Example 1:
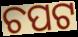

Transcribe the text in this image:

ଚପଟ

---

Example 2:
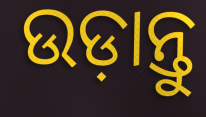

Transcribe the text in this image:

ଉଡ଼ାନ୍ତୁ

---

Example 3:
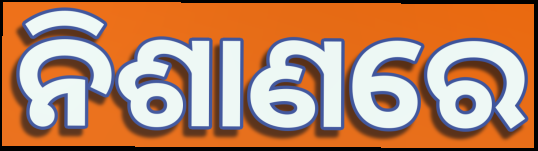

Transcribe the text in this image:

ନିଶାଣରେ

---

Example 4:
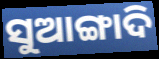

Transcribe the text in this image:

ସୁଆଙ୍ଗାଦି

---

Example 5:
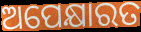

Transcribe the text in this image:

ଅପେକ୍ଷାରତ